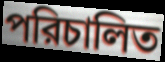
পরিচালিত